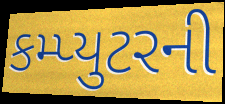
કમ્પ્યુટરની